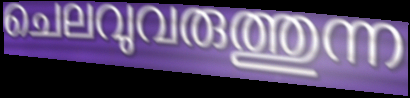
ചെലവുവരുത്തുന്ന